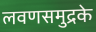
लवणसमुद्रके